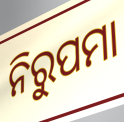
ନିରୁପମା